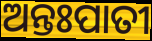
ଅନ୍ତଃପାତୀ